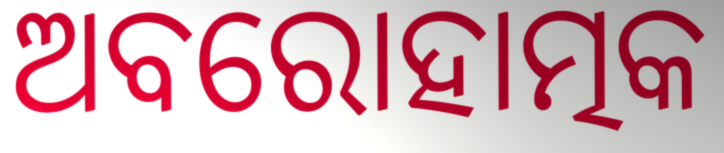
ଅବରୋହାତ୍ମକ